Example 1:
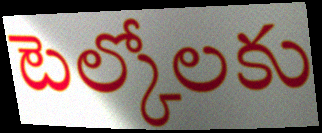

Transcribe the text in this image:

టెల్కోలకు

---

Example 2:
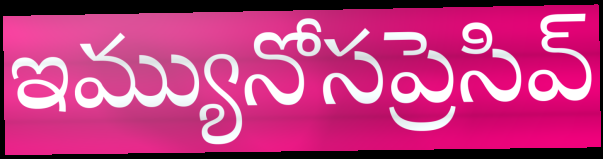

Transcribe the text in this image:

ఇమ్యునోసప్రెసివ్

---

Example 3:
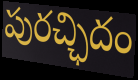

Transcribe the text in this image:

పురచ్ఛిదం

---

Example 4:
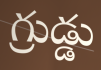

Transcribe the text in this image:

గ్రుడ్డు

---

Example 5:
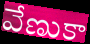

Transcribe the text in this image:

వేణుకా